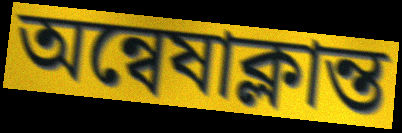
অন্বেষাক্লান্ত